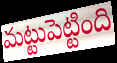
మట్టుపెట్టింది